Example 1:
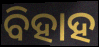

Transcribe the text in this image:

ବିହାହ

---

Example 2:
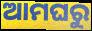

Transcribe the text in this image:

ଆମଘରୁ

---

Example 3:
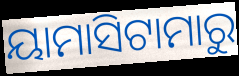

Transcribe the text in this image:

ୟାମାସିଟାମାରୁ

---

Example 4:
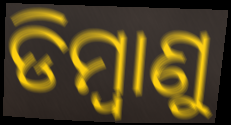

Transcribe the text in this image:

ଡିମ୍ୱାଣୁ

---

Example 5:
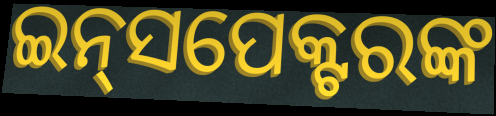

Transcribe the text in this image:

ଇନ୍‍ସପେକ୍ଟରଙ୍କ